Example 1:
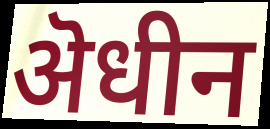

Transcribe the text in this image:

ऄधीन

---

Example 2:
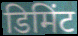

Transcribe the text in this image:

डिमिंट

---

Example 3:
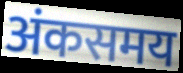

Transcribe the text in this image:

अंकसमय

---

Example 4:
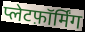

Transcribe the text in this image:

प्लेटफ़ॉर्मिंग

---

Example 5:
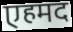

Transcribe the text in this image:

एहमद